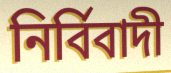
নির্বিবাদী